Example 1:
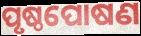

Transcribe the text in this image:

ପୃଷ୍ଠପୋଷଣ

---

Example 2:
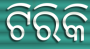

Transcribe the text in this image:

ଟିରିକି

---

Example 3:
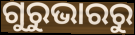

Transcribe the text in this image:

ଗୁରୁଭାରରୁ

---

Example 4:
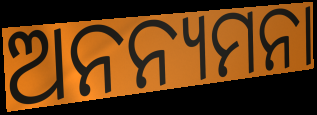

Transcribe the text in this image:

ଅନନ୍ୟମନା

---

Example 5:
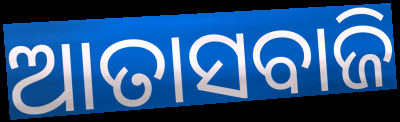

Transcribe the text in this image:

ଆତାସବାଜି